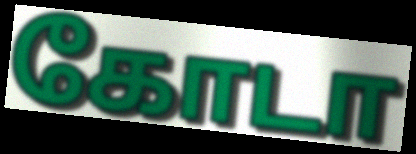
கோடா